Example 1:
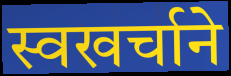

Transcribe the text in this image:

स्वखर्चाने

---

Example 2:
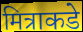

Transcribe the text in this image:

मित्राकडे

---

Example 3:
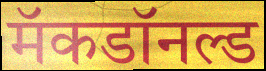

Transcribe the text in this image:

मॅकडॉनल्ड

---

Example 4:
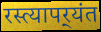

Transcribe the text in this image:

रस्त्यापर्यंत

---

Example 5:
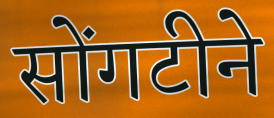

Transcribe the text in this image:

सोंगटीने